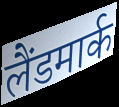
लैंडमार्क